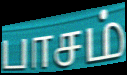
பாசம்